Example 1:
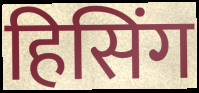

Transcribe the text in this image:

हिसिंग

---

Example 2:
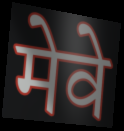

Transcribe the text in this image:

मेवे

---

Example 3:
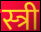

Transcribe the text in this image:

स्‍त्री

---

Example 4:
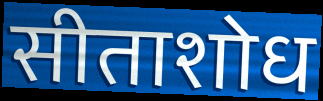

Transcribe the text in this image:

सीताशोध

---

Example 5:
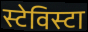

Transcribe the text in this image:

स्टेविस्टा